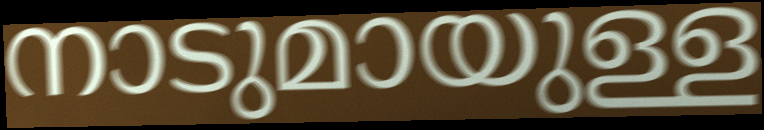
നാടുമായുള്ള